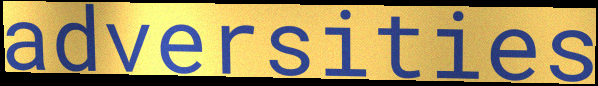
adversities